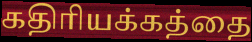
கதிரியக்கத்தை